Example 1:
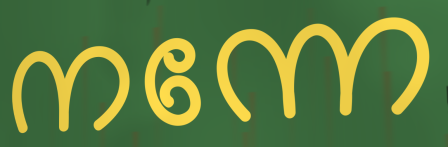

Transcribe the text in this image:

നന്നേ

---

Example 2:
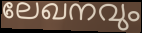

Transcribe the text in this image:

ലേഖനവും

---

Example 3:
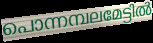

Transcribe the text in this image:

പൊന്നമ്പലമേട്ടിൽ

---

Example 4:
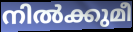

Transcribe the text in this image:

നിൽക്കുമീ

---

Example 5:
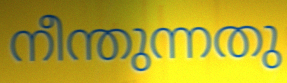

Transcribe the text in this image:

നീന്തുന്നതു